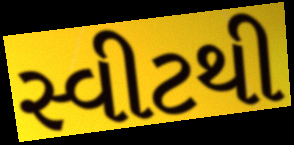
સ્વીટથી